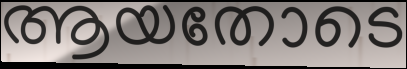
ആയതോടെ